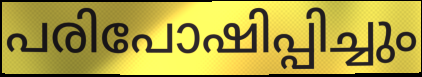
പരിപോഷിപ്പിച്ചും